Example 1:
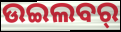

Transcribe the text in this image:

ଉଇଲବର୍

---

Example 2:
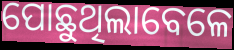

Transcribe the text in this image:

ପୋଛୁଥିଲାବେଳେ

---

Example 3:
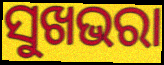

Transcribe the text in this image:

ସୁଖଭରା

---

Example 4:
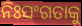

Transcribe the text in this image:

ନିଃସଂଗତାକୁ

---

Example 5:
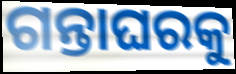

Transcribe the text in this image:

ଗନ୍ତାଘରକୁ